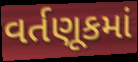
વર્તણૂકમાં